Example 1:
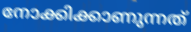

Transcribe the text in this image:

നോക്കിക്കാണുന്നത്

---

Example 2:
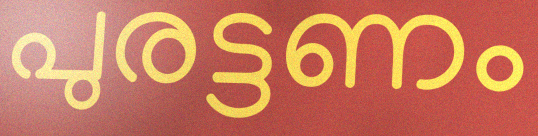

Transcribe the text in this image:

പുരട്ടണം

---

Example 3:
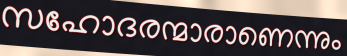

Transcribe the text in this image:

സഹോദരന്മാരാണെന്നും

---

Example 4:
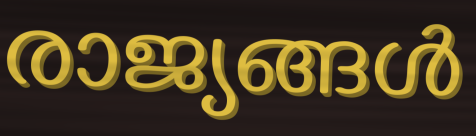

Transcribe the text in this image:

രാജ്യങ്ങൾ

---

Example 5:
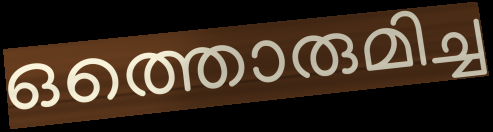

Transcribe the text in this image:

ഒത്തൊരുമിച്ച